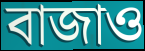
বাজাও